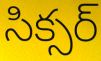
సిక్సర్